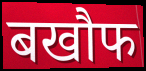
बखौफ